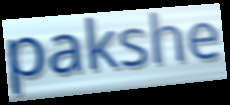
pakshe